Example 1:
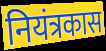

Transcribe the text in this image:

नियंत्रकास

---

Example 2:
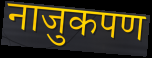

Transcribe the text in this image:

नाजुकपण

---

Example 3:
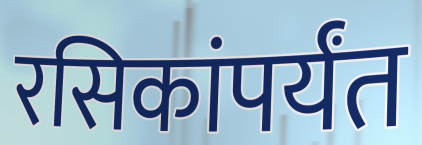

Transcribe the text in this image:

रसिकांपर्यंत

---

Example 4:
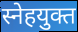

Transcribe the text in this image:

स्नेहयुक्त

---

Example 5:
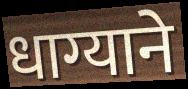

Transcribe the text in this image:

धाग्याने